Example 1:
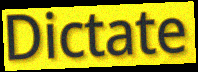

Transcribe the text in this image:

Dictate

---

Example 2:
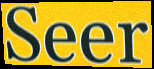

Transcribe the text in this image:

Seer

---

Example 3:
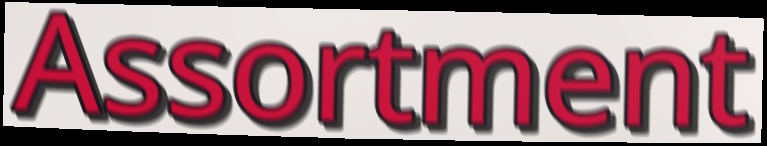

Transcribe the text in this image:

Assortment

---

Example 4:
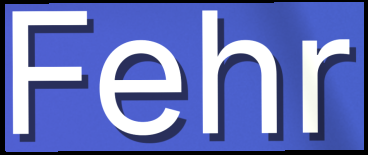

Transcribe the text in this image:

Fehr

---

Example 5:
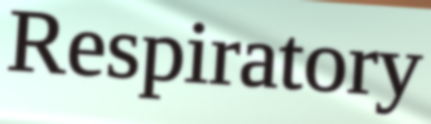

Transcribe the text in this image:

Respiratory